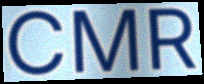
CMR